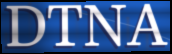
DTNA